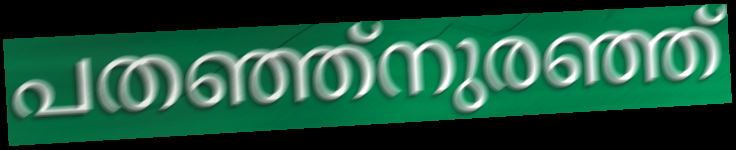
പതഞ്ഞ്നുരഞ്ഞ്